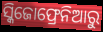
ସ୍କିଜୋଫ୍ରେନିଆରୁ